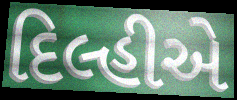
દિલ્હીએ